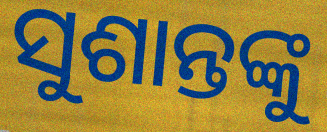
ସୁଶାନ୍ତଙ୍କୁ